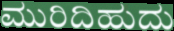
ಮುರಿದಿಹುದು